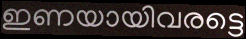
ഇണയായിവരട്ടെ